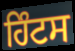
ਹਿੰਟਸ